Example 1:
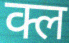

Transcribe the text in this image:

क्ल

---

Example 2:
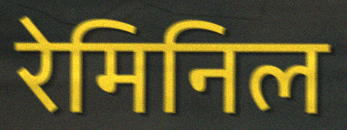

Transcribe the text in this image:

रेमिनिल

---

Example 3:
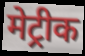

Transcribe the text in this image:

मेट्रीक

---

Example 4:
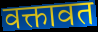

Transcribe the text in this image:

वक्तावत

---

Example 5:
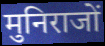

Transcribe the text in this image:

मुनिराजों